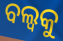
ବଲ୍ବକୁ